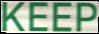
KEEP